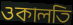
ওকালতি